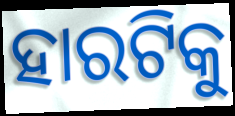
ହାରଟିକୁ